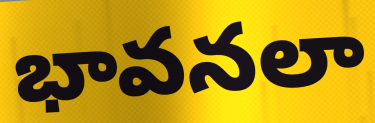
భావనలా